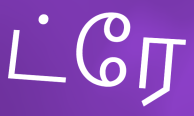
ட்ரே